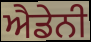
ਐਡੇਨੀ